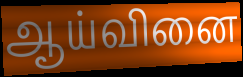
ஆய்வினை